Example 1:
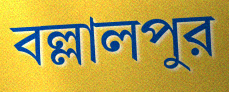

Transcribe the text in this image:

বল্লালপুর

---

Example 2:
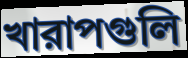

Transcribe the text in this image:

খারাপগুলি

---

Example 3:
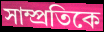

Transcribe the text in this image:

সাম্প্রতিকে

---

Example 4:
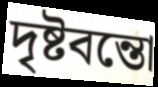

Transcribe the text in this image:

দৃষ্টবন্তো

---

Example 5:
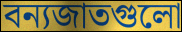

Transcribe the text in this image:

বন্যজাতগুলো